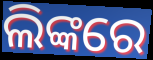
ଲିଙ୍କରେ